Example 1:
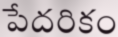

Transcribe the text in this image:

పేదరికం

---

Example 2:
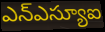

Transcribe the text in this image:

ఎన్ఎస్యూఐ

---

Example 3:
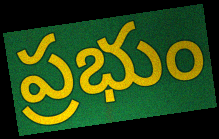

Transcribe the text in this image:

ప్రభుం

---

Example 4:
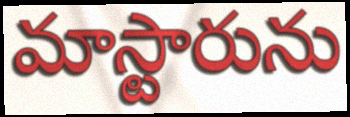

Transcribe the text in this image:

మాస్టారును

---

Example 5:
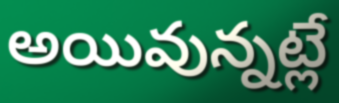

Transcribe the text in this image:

అయివున్నట్లే